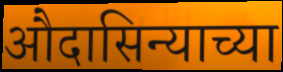
औदासिन्याच्या